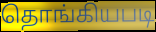
தொங்கியபடி